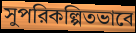
সুপরিকল্পিতভাবে